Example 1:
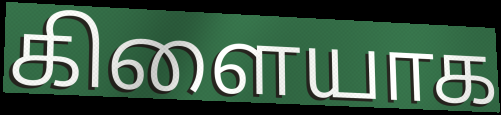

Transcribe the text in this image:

கிளையாக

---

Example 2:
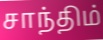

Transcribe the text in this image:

சாந்திம்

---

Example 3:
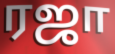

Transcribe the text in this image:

ரஜா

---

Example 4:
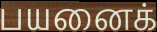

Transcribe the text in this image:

பயனைக்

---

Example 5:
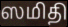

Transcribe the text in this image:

ஸமிதி